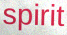
spirit